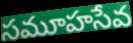
సమూహసేవ